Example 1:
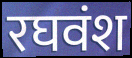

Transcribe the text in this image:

रघवंश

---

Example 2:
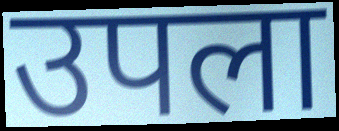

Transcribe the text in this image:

उपला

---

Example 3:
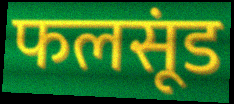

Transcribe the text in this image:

फलसूंड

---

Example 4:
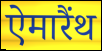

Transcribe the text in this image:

ऐमारैंथ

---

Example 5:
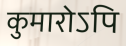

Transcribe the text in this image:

कुमारोऽपि